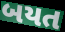
બયત